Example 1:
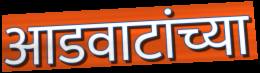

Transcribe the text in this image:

आडवाटांच्या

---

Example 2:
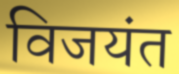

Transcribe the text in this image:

विजयंत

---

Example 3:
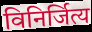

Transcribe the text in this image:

विनिर्जित्य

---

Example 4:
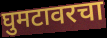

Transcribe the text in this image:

घुमटावरचा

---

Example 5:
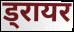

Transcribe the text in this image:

ड्रायर